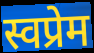
स्वप्रेम